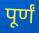
पूर्णं